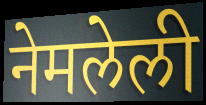
नेमलेली